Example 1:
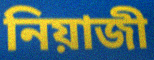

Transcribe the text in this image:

নিয়াজী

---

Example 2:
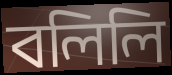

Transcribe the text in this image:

বলিলি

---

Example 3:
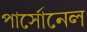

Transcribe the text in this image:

পার্সোনেল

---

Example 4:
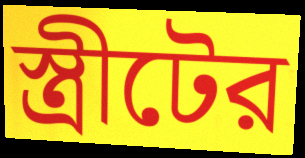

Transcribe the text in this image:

স্ত্রীটের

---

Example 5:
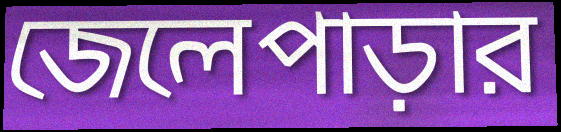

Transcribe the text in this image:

জেলেপাড়ার